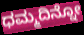
ಧಮ್ಮದಿನ್ನೋ